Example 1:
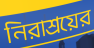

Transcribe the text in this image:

নিরাশ্রয়ের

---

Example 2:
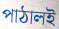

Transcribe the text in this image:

পাঠালই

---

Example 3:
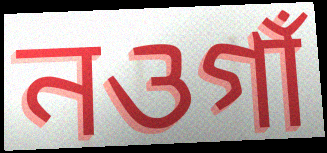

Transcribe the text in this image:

নওগাঁ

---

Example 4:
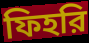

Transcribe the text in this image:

ফিহরি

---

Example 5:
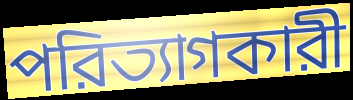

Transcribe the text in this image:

পরিত্যাগকারী